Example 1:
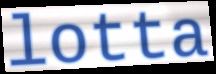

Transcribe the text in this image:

lotta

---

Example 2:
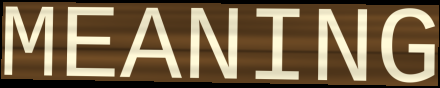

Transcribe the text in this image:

MEANING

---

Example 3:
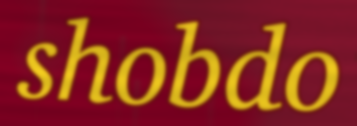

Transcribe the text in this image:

shobdo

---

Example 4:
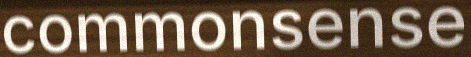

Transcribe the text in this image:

commonsense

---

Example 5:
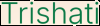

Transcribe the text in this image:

Trishati